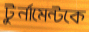
টুর্নামেন্টকে